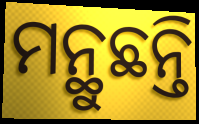
ମନ୍ଥୁଛନ୍ତି